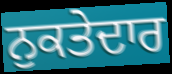
ਨੁਕਤੇਦਾਰ